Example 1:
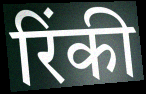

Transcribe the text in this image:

रिंकी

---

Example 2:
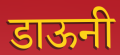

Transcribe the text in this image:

डाऊनी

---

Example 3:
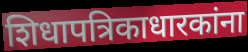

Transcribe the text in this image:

शिधापत्रिकाधारकांना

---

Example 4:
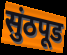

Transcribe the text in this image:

सुंठपूड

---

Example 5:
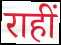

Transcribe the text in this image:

राहीं